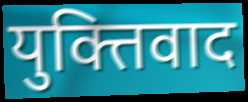
युक्तिवाद